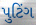
પુટિંગ